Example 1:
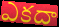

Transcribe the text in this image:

ఎకదా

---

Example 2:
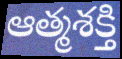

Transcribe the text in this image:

ఆత్మశక్తి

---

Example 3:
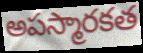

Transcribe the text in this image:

అపస్మారకత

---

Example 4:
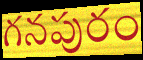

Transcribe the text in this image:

గనపురం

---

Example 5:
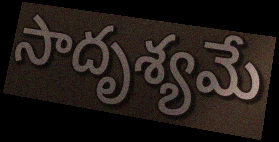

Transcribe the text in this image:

సాదృశ్యమే